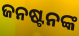
ଜନଷ୍ଟନଙ୍କ